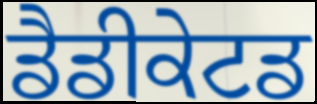
ਡੈਡੀਕੇਟਡ